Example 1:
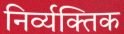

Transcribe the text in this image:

निर्व्यक्तिक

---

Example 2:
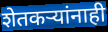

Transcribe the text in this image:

शेतकऱ्यांनाही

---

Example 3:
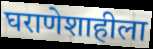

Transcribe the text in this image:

घराणेशाहीला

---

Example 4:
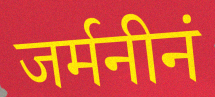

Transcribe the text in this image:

जर्मनीनं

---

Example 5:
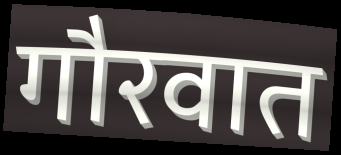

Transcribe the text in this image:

गौरवात